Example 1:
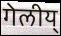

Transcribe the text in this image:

गेलीय्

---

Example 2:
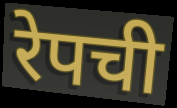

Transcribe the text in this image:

रेपची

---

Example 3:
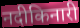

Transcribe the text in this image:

नदीकिनारी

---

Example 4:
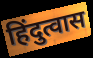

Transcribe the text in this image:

हिंदुत्वास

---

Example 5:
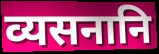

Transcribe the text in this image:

व्यसनानि